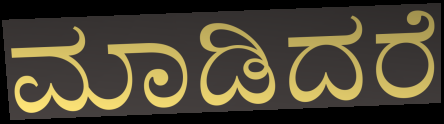
ಮಾಡಿದರೆ